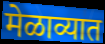
मेळाव्यात